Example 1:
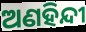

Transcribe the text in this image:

ଅଣହିନ୍ଦୀ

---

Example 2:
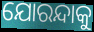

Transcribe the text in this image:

ଯୋରନ୍ଦାକୁ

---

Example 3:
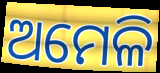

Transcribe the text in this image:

ଅମେଳି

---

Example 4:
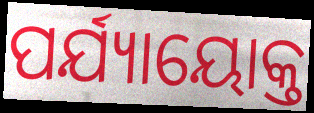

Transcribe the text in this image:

ପର୍ଯ୍ୟାୟୋକ୍ତ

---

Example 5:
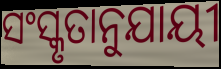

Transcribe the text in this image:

ସଂସ୍କୃତାନୁଯାୟୀ